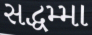
સદ્ધમ્મા